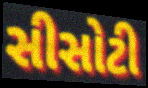
સીસોટી